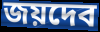
জয়দেব